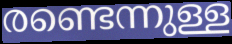
രണ്ടെന്നുള്ള